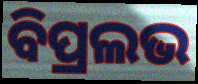
ବିପ୍ରଲଭ